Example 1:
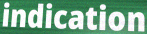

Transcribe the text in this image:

indication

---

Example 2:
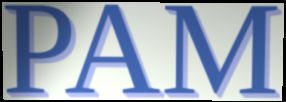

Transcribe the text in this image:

PAM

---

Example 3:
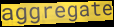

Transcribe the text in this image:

aggregate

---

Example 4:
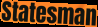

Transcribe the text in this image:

Statesman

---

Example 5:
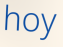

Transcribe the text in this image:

hoy